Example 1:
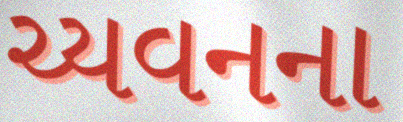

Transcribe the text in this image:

ચ્યવનના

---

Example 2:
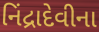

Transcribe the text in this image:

નિંદ્રાદેવીના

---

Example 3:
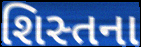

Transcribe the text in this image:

શિસ્તના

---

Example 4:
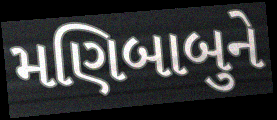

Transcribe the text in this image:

મણિબાબુને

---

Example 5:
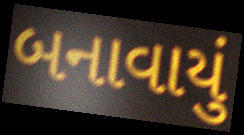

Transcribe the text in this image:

બનાવાયું